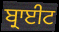
ਬ੍ਰਾਈਟ